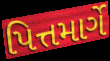
પિત્તમાર્ગે